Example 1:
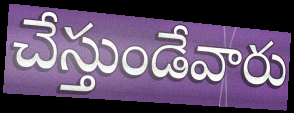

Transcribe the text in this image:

చేస్తుండేవారు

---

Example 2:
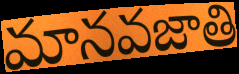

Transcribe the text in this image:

మానవజాతి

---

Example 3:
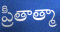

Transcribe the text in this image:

ప్రీతాత్మా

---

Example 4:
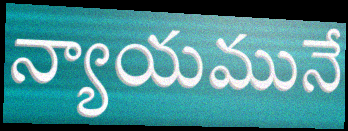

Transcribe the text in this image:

న్యాయమునే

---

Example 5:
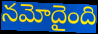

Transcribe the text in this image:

నమోదైంది